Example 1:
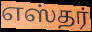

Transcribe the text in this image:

எஸ்தர்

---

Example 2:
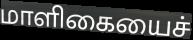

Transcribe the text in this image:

மாளிகையைச்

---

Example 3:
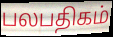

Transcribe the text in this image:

பலபதிகம்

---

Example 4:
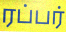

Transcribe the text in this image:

ரப்பர்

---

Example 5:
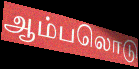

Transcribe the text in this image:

ஆம்பலொடு